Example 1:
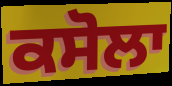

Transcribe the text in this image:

ਕਸੋਲਾ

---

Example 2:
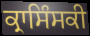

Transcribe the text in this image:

ਕ੍ਰਾਸਿੰਸਕੀ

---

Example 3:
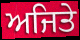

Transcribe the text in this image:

ਅਜਿਤੇ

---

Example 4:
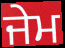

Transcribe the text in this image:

ਜੇਮ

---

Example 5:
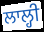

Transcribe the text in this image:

ਲਾਲ੍ਹੀ